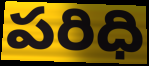
పరిధి